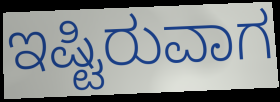
ಇಷ್ಟಿರುವಾಗ